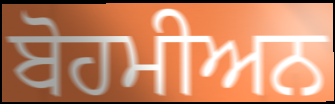
ਬੋਹਮੀਅਨ